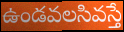
ఉండవలసివస్తే